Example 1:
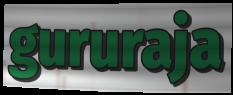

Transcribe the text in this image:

gururaja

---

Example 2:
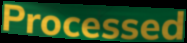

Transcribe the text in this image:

Processed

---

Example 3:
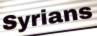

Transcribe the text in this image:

Syrians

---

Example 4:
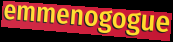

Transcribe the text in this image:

emmenogogue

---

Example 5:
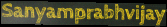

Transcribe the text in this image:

Sanyamprabhvijay